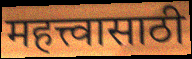
महत्त्वासाठी